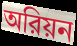
অরিয়ন